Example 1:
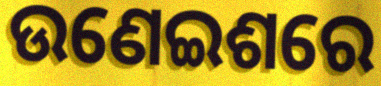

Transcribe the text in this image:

ଉଣେଇଶରେ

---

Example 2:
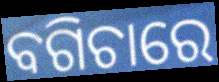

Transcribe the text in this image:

ବଗିଚାରେ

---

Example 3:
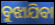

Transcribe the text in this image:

ବୁଝାଯିବା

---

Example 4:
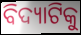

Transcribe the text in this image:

ବିଦ୍ୟାଟିକୁ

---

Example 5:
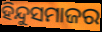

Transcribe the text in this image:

ହିନ୍ଦୁସମାଜର